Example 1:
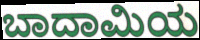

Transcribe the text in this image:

ಬಾದಾಮಿಯ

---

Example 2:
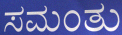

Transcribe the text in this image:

ಸಮಂತು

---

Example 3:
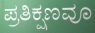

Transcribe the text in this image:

ಪ್ರತಿಕ್ಷಣವೂ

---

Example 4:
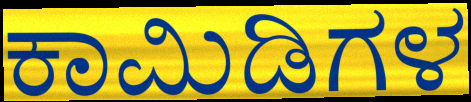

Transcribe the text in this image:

ಕಾಮಿಡಿಗಳ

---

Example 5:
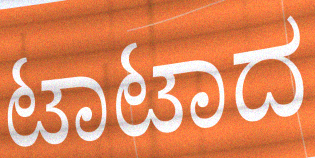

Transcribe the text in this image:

ಟಾಟಾದ